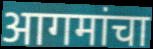
आगमांचा